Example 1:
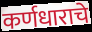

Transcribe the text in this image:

कर्णधाराचे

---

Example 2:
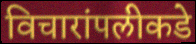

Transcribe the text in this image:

विचारांपलीकडे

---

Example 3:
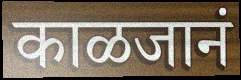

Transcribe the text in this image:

काळजानं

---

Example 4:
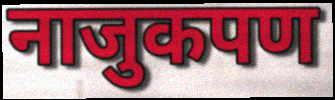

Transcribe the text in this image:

नाजुकपण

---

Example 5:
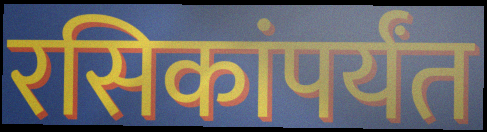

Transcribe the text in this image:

रसिकांपर्यंत